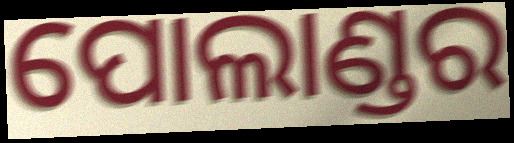
ପୋଲାଣ୍ଡର